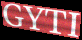
GYTI